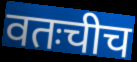
वतःचीच